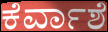
ಕೆರ್ವಾಶೆ